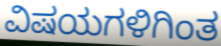
ವಿಷಯಗಳಿಗಿಂತ